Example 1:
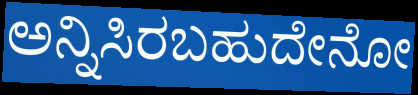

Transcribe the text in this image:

ಅನ್ನಿಸಿರಬಹುದೇನೋ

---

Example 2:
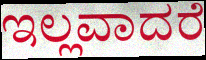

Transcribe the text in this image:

ಇಲ್ಲವಾದರೆ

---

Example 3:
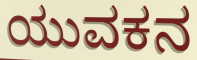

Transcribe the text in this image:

ಯುವಕನ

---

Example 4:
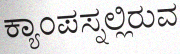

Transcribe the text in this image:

ಕ್ಯಾಂಪಸ್ನಲ್ಲಿರುವ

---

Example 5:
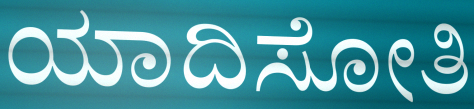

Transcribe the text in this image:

ಯಾದಿಸೋತಿ